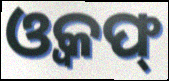
ଓ୍ୱକଫ୍